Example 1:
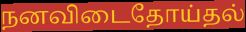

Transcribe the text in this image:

நனவிடைதோய்தல்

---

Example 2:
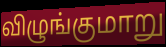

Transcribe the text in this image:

விழுங்குமாறு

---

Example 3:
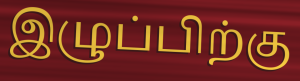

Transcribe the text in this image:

இழுப்பிற்கு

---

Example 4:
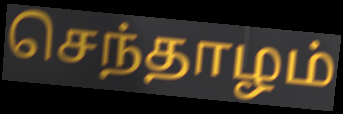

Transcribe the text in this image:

செந்தாழம்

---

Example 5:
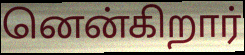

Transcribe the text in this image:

னென்கிறார்